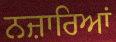
ਨਜ਼ਾਰਿਆਂ